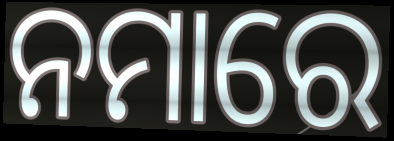
ନମାରେ